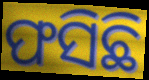
ଫସିଛି